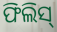
ଫିଲିସ୍